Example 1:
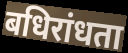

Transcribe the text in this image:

बधिरांधता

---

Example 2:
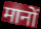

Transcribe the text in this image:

मानों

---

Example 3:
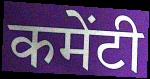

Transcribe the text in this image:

कमेंटी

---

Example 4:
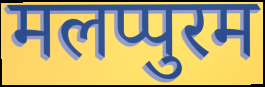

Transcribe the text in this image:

मलप्पुरम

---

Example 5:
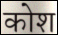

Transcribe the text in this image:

कोश